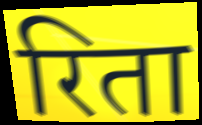
रिता